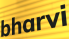
bharvi